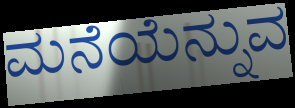
ಮನೆಯೆನ್ನುವ